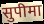
सुपीमा